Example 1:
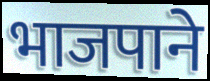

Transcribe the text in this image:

भाजपाने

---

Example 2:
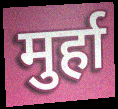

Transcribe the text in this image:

मुर्हा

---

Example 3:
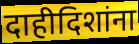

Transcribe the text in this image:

दाहीदिशांना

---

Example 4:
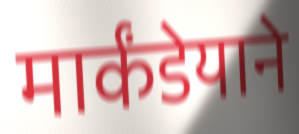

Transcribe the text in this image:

मार्कंडेयाने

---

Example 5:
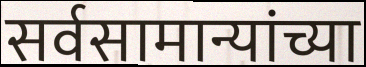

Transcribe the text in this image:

सर्वसामान्यांच्या